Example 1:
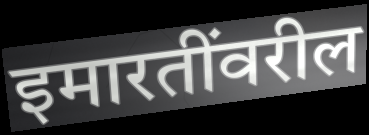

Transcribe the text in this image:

इमारतींवरील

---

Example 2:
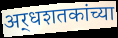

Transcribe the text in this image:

अर्धशतकांच्या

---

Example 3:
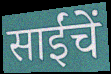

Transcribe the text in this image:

साईंचें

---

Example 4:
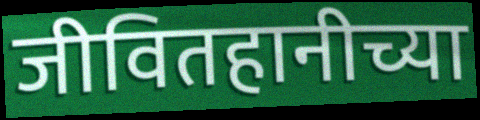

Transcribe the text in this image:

जीवितहानीच्या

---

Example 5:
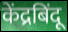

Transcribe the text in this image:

केंद्रबिंदू